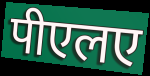
पीएलए